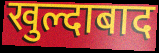
खुल्दाबाद